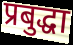
प्रबुद्धा